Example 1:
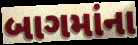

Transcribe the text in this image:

બાગમાંના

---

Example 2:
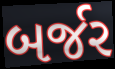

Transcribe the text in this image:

બર્જર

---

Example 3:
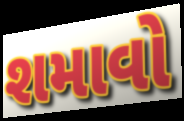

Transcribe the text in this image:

શમાવો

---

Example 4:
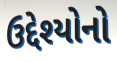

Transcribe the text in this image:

ઉદ્દેશ્યોનો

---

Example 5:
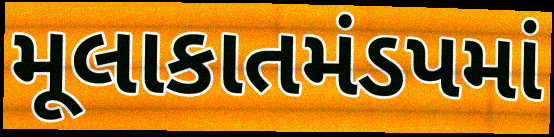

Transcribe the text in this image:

મૂલાકાતમંડપમાં